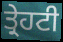
ਤ੍ਰੇਹਟੀ